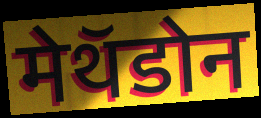
मेथॅडोन